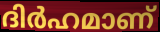
ദിർഹമാണ്